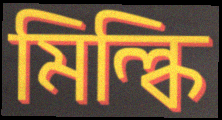
মিল্কি